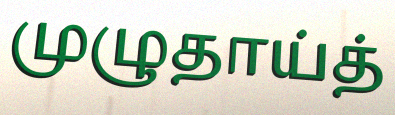
முழுதாய்த்